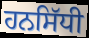
ਹਨਸਿੱਧੀ